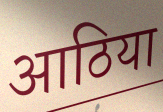
आठिया